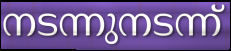
നടന്നുനടന്ന്